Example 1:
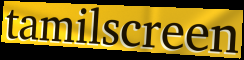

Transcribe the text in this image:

tamilscreen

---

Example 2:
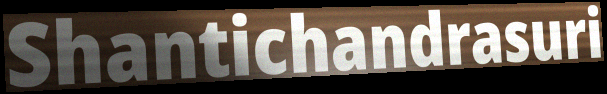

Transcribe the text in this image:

Shantichandrasuri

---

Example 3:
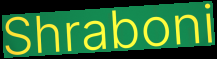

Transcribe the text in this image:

Shraboni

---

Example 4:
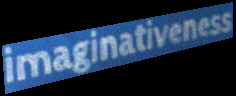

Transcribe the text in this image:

imaginativeness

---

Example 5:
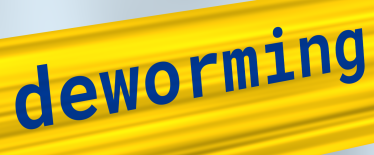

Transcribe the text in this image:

deworming